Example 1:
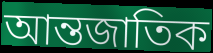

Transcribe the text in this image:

আন্তজাতিক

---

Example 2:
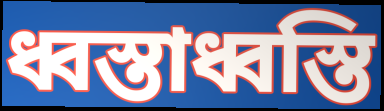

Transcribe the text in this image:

ধ্বস্তাধ্বস্তি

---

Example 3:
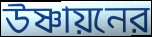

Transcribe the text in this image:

উষ্ণায়নের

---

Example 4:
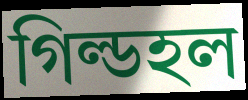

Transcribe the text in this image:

গিল্ডহল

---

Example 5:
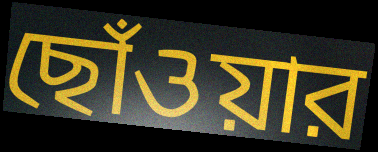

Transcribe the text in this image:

ছোঁওয়ার